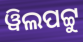
ୱିଲପଟ୍ଟୁ